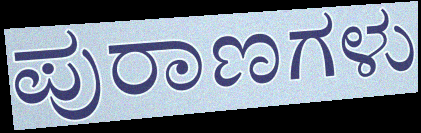
ಪುರಾಣಗಳು